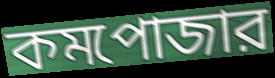
কমপোজার